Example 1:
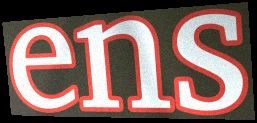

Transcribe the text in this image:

ens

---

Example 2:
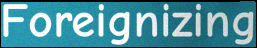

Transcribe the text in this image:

Foreignizing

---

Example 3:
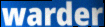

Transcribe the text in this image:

warder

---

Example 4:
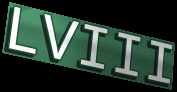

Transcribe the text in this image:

LVIII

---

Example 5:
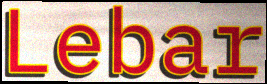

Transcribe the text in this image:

Lebar